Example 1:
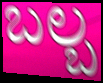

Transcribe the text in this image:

ಬಲ್ಬ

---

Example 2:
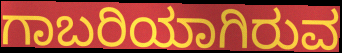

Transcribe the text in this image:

ಗಾಬರಿಯಾಗಿರುವ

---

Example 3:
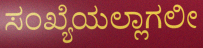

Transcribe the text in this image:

ಸಂಖ್ಯೆಯಲ್ಲಾಗಲೀ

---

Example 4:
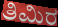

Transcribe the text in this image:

ತಿಮಿರ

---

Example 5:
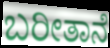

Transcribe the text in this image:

ಬರೀತಾನೆ